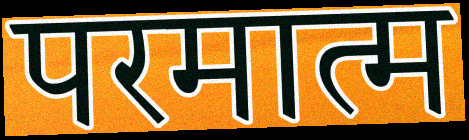
परमात्म